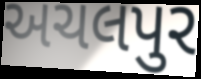
અચલપુર